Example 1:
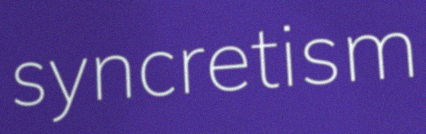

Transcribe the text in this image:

syncretism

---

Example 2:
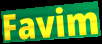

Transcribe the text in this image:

Favim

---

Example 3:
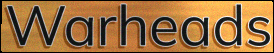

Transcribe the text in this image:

Warheads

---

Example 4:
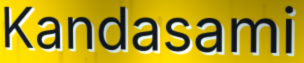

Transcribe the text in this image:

Kandasami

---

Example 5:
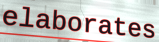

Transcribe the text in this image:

elaborates